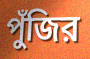
পুঁজির